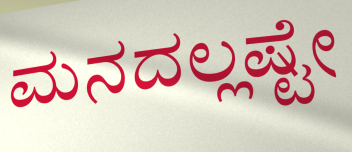
ಮನದಲ್ಲಷ್ಟೇ